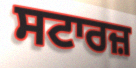
ਸਟਾਰਜ਼